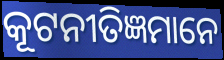
କୂଟନୀତିଜ୍ଞମାନେ